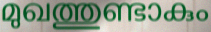
മുഖത്തുണ്ടാകും